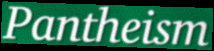
Pantheism